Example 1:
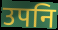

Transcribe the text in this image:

उपनि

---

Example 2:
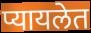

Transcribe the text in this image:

प्यायलेत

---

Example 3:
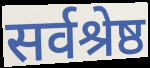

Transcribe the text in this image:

सर्वश्रेष्ठ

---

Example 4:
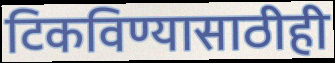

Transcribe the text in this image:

टिकविण्यासाठीही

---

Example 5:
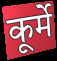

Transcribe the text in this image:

कूर्मे